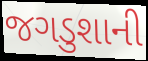
જગડુશાની